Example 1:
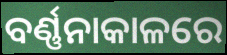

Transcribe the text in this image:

ବର୍ଣ୍ଣନାକାଳରେ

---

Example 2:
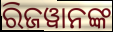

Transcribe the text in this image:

ରିଜୱାନଙ୍କ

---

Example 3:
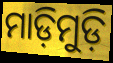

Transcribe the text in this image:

ମାଡ଼ିମୁଡ଼ି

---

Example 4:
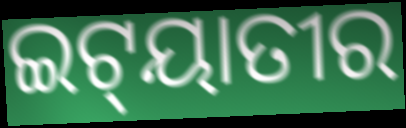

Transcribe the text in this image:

ଇଟ୍‍ୟାତୀର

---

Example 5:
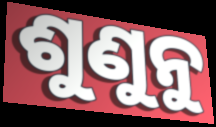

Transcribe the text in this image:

ଶୁଣୁନୁ